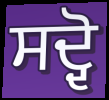
ਸਦ੍ਦੋ